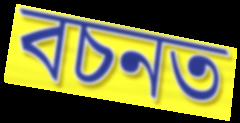
বচনত